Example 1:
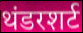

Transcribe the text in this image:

थंडरशर्ट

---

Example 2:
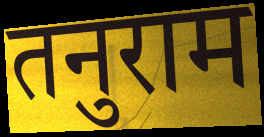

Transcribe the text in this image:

तनुराम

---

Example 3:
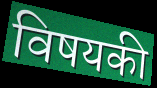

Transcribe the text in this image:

विषयकी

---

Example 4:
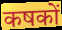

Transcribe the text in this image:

कषकों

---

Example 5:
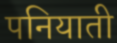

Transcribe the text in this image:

पनियाती